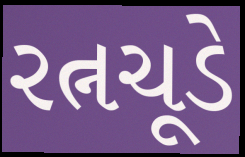
રત્નચૂડે